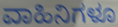
ವಾಹಿನಿಗಳೂ